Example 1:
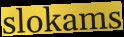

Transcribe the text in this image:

slokams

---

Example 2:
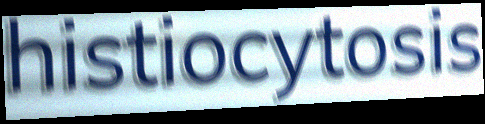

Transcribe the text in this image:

histiocytosis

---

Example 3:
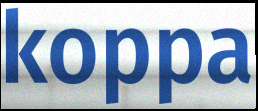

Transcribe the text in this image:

koppa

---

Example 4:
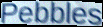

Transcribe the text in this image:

Pebbles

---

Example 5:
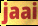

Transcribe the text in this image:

jaai